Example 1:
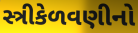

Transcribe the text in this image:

સ્ત્રીકેળવણીનો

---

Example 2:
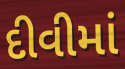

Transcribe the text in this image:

દીવીમાં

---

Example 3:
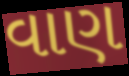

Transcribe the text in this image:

વાણ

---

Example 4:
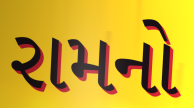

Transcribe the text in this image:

રામનો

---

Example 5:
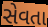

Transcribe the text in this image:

સેવતા